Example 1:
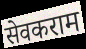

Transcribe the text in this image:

सेवकराम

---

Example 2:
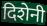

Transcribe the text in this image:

दिशेनी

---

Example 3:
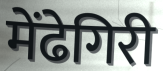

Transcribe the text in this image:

मेंढेगिरी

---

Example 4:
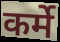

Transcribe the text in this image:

कर्मे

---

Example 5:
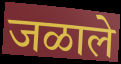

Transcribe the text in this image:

जळाले